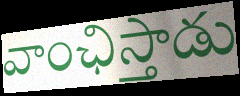
వాంఛిస్తాడు